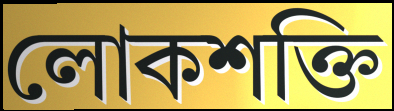
লোকশক্তি